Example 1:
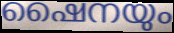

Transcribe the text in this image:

ഷൈനയും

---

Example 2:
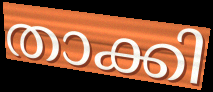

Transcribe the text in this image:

താക്കി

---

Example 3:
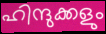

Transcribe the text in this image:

ഹിന്ദുക്കളും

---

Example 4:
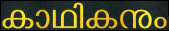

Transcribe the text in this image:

കാഥികനും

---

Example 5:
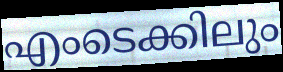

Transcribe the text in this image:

എംടെക്കിലും